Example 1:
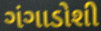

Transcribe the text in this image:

ગંગાડોશી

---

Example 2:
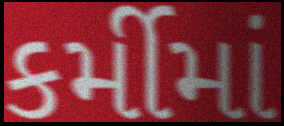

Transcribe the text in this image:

કર્મીમાં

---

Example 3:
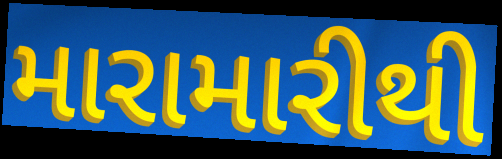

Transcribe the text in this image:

મારામારીથી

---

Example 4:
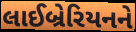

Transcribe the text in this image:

લાઈબ્રેરિયનને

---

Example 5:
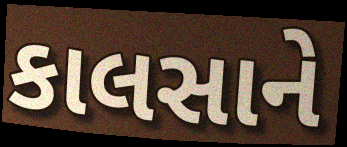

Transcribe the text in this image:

કાલસાને